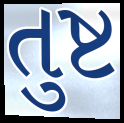
તુષ્ટ